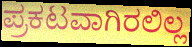
ಪ್ರಕಟವಾಗಿರಲಿಲ್ಲ